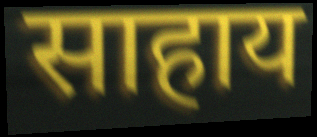
साहाय